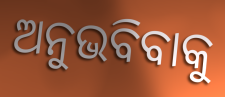
ଅନୁଭବିବାକୁ